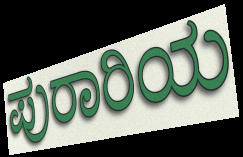
ಪುರಾರಿಯ